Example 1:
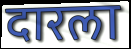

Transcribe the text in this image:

दारला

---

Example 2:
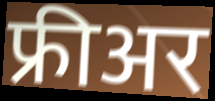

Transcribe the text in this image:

फ्रीअर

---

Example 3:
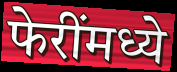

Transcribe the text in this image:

फेरींमध्ये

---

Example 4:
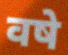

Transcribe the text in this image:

वषे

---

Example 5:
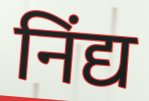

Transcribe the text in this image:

निंद्य